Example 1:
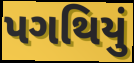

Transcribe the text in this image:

પગથિયું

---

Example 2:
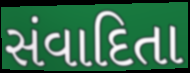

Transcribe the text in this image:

સંવાદિતા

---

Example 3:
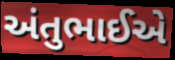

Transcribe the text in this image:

અંતુભાઈએ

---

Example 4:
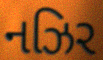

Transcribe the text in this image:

નઝિર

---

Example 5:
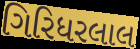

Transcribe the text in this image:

ગિરિધરલાલ